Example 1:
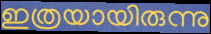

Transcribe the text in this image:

ഇത്രയായിരുന്നു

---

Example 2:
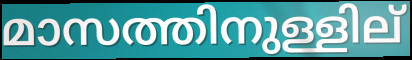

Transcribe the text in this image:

മാസത്തിനുള്ളില്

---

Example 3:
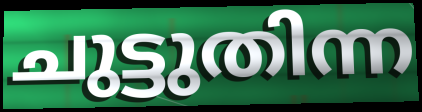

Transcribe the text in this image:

ചുട്ടുതിന്ന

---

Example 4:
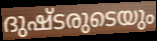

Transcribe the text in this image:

ദുഷ്ടരുടെയും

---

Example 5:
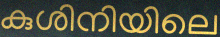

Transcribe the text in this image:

കുശിനിയിലെ